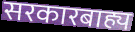
सरकारबाह्य